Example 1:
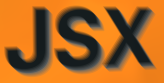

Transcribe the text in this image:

JSX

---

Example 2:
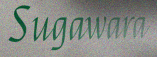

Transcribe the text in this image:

Sugawara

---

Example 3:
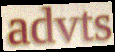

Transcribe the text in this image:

advts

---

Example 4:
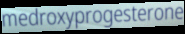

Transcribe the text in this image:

medroxyprogesterone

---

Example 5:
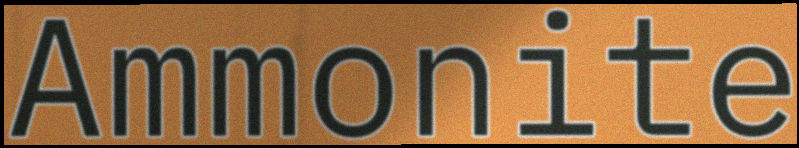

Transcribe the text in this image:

Ammonite